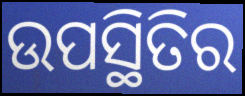
ଉପସ୍ଥିତିର